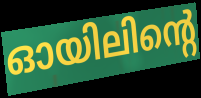
ഓയിലിന്റെ